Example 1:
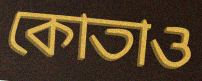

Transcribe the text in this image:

কোতাও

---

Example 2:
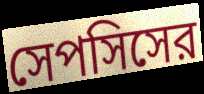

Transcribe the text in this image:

সেপসিসের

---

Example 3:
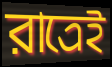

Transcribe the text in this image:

রাত্রেই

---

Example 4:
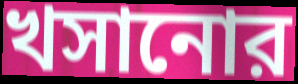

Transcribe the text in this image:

খসানোর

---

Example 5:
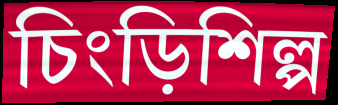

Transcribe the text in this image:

চিংড়িশিল্প